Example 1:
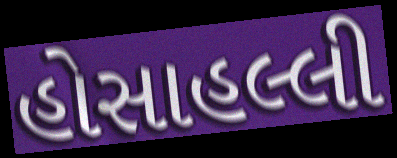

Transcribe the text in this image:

હોસાહલ્લી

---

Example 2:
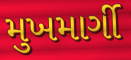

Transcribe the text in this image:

મુખમાર્ગી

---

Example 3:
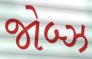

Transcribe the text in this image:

જોબ્ઝ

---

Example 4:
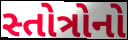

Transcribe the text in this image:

સ્તોત્રોનો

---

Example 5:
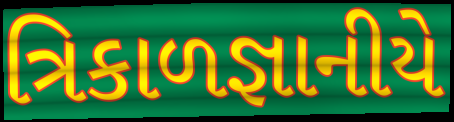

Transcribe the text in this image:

ત્રિકાળજ્ઞાનીયે